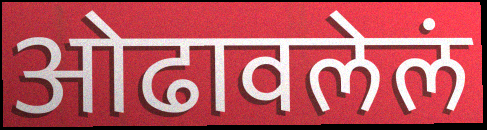
ओढावलेलं